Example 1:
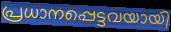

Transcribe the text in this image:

പ്രധാനപ്പെട്ടവയായി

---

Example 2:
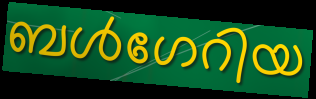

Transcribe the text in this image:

ബൾഗേറിയ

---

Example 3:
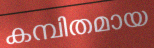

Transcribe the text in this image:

കമ്പിതമായ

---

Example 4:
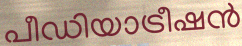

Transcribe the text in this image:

പീഡിയാട്രീഷൻ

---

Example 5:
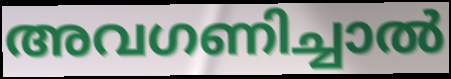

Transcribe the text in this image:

അവഗണിച്ചാൽ